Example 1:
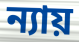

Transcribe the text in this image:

ন্যায়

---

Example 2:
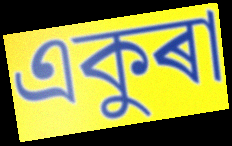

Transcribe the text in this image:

একুৰা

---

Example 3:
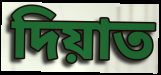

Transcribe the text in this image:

দিয়াত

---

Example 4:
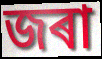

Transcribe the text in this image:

জৰা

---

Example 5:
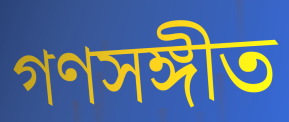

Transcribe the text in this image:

গণসঙ্গীত